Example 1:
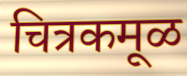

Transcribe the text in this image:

चित्रकमूळ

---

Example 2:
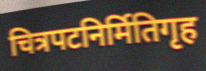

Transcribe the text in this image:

चित्रपटनिर्मितिगृह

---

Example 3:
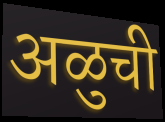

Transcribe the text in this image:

अळुची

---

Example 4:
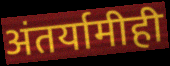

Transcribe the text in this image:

अंतर्यामीही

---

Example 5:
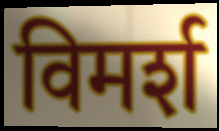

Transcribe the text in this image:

विमर्श